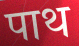
पाथ